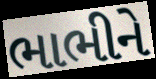
ભાભીને